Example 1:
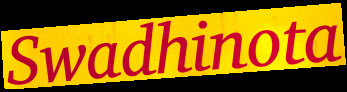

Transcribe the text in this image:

Swadhinota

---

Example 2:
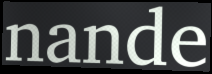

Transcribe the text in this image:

nande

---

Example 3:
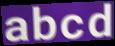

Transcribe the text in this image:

abcd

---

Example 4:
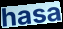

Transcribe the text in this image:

hasa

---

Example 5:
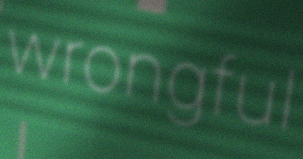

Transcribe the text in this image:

wrongful